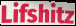
Lifshitz